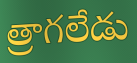
త్రాగలేడు